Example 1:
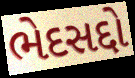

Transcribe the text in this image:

ભેદસદ્દો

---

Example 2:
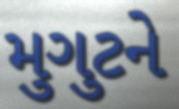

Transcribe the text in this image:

મુગુટને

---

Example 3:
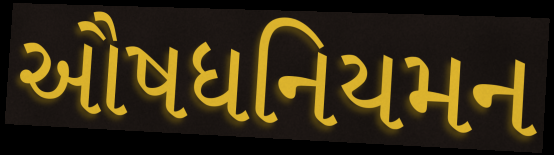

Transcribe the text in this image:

ઔષધનિયમન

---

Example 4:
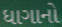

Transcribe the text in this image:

ધાગાનો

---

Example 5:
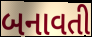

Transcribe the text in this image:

બનાવતી